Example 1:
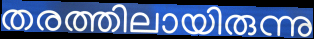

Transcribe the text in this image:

തരത്തിലായിരുന്നു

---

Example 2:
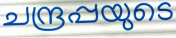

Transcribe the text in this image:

ചന്ദ്രപ്പയുടെ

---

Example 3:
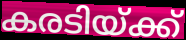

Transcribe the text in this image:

കരടിയ്ക്ക്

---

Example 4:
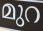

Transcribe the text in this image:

മുറ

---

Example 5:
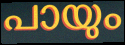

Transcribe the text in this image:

പായും